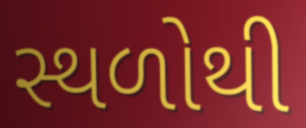
સ્થળોથી